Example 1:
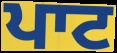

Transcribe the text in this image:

ਪਾਟ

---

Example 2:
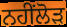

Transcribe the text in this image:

ਨਹੀਂਲੋੜ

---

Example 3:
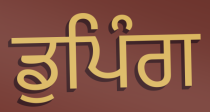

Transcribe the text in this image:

ਡੁਪਿੰਗ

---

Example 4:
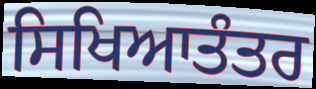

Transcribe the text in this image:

ਸਿਖਿਆਤੰਤਰ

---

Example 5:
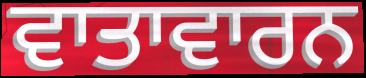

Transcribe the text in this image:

ਵਾਤਾਵਾਰਨ